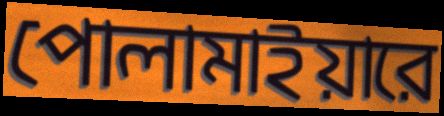
পোলামাইয়ারে